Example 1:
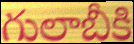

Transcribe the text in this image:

గులాబీకి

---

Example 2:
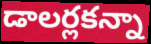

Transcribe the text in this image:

డాలర్లకన్నా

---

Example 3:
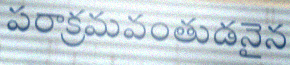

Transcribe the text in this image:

పరాక్రమవంతుడనైన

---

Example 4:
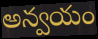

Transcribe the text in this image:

అన్వయం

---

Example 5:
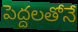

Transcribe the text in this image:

పెద్దలతోనే